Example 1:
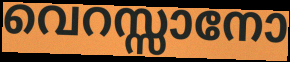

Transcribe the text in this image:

വെറസ്സാനോ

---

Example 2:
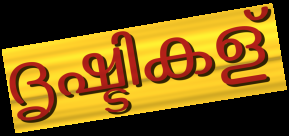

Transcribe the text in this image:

ദൃഷ്ടികള്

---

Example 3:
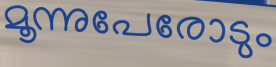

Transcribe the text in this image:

മൂന്നുപേരോടും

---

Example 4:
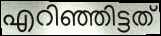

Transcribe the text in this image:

എറിഞ്ഞിട്ടത്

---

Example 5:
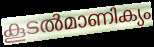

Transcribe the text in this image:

കൂടൽമാണിക്യം